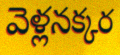
వెళ్లనక్కర